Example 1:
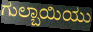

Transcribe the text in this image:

ಗುಲ್ಬಾಯಿಯು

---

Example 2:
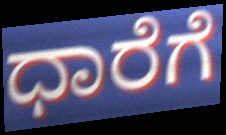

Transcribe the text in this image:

ಧಾರೆಗೆ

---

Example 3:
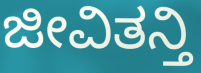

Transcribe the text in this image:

ಜೀವಿತನ್ತಿ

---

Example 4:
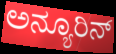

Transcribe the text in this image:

ಅನ್ಯೂರಿನ್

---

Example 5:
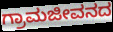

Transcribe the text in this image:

ಗ್ರಾಮಜೀವನದ